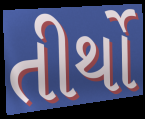
તીર્થો